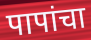
पापांचा